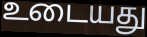
உடையது